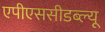
एपीएससीडब्ल्यू